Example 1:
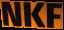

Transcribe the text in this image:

NKF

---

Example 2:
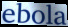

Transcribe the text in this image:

ebola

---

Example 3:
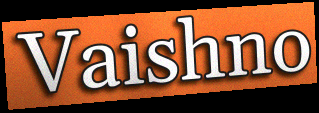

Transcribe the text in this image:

Vaishno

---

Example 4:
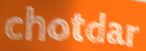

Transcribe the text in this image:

chotdar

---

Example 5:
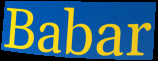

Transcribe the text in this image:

Babar